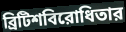
ব্রিটিশবিরোধিতার